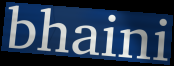
bhaini